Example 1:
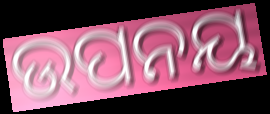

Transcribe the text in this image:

ଉପନୟ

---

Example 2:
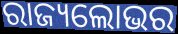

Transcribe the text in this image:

ରାଜ୍ୟଲୋଭର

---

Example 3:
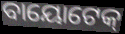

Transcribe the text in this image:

ବାୟୋଟେକ୍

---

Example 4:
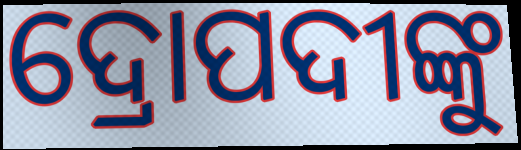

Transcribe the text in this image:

ଦ୍ରୋପଦୀଙ୍କୁ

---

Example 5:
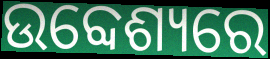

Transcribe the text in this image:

ଉବ୍ଦେଶ୍ୟରେ